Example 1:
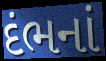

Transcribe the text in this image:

દંભનાં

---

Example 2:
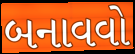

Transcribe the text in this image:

બનાવવો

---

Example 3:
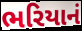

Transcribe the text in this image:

ભરિયાનં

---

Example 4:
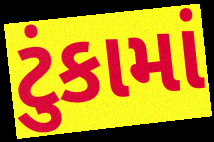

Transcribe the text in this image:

ટુંકામાં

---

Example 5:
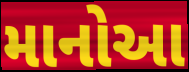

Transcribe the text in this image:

માનોઆ